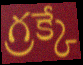
గ్రక్కే